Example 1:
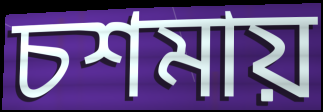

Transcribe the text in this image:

চশমায়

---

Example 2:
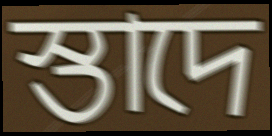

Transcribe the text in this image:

স্তাদে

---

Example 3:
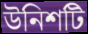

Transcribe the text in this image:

উনিশটি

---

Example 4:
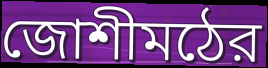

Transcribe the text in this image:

জোশীমঠের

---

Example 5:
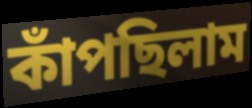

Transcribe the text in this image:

কাঁপছিলাম